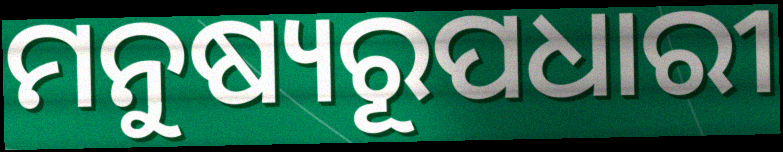
ମନୁଷ୍ୟରୂପଧାରୀ